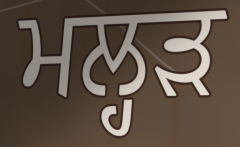
ਮਲ੍ਹੜ